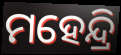
ମହେନ୍ଦ୍ରି